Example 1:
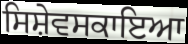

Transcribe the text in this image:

ਸਿਸ਼ੇਵਸਕਾਇਆ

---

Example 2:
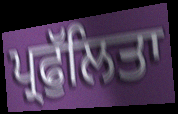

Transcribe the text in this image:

ਪ੍ਰਫੁੱਲਿਤਾ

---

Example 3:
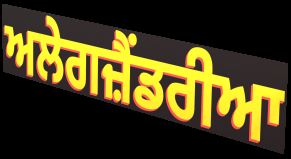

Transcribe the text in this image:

ਅਲੇਗਜ਼ੈਂਡਰੀਆ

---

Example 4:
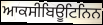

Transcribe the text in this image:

ਆਕਸੀਬਿਊਟਿਨਿਨ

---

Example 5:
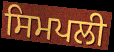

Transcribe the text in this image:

ਸਿਮਪਲੀ